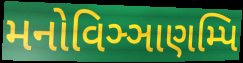
મનોવિઞ્ઞાણમ્પિ